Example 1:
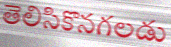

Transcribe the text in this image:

తెలిసికొనగలడు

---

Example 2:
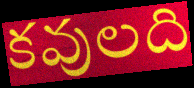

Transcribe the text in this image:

కవులది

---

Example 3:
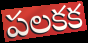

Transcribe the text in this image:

పలకక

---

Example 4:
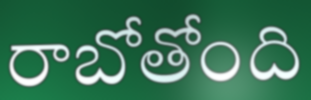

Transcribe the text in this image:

రాబోతోంది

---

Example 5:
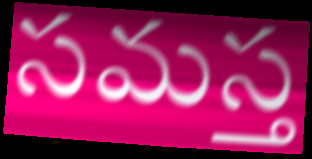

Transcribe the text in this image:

సమస్త